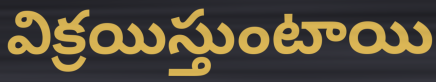
విక్రయిస్తుంటాయి